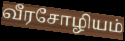
வீரசோழியம்